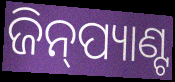
ଜିନ୍‍ପ୍ୟାଣ୍ଟ